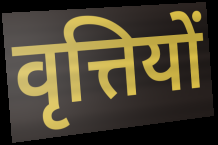
वृत्तियों